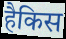
हैकिस